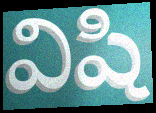
విషి